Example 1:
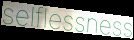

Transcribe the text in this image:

selflessness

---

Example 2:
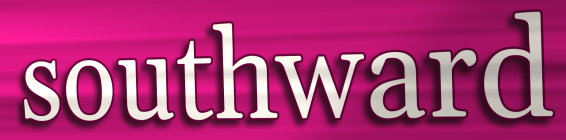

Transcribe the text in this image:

southward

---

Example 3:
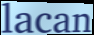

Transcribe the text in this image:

lacan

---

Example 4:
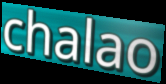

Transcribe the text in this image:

chalao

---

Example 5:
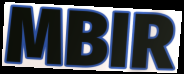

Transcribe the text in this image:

MBIR